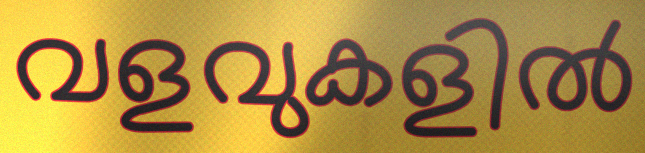
വളവുകളിൽ